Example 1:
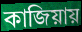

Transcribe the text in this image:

কাজিয়ায়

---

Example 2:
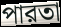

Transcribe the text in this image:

পারতা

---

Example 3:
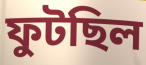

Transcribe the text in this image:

ফুটছিল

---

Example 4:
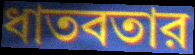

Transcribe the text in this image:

ধাতবতার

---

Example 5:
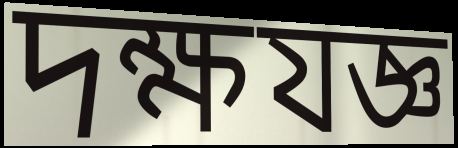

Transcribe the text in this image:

দক্ষযজ্ঞ